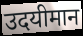
उदयीमान